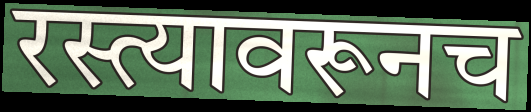
रस्त्यावरूनच